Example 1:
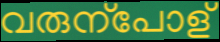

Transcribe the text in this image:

വരുന്പോള്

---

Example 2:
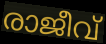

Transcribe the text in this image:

രാജീവ്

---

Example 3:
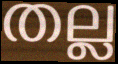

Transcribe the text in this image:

തല്ല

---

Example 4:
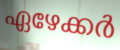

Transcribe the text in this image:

ഏഴേക്കർ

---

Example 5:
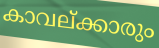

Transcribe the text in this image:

കാവല്ക്കാരും